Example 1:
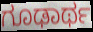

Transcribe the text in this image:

ಗೂಢಾರ್ಥ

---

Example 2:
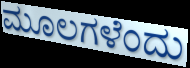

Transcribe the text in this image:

ಮೂಲಗಳೆಂದು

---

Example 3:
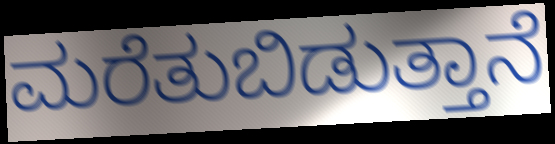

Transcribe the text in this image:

ಮರೆತುಬಿಡುತ್ತಾನೆ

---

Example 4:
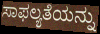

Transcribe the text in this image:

ಸಾಫಲ್ಯತೆಯನ್ನು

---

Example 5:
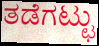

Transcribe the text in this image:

ತಡೆಗಟ್ಟು